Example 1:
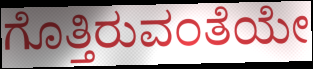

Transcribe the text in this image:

ಗೊತ್ತಿರುವಂತೆಯೇ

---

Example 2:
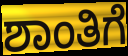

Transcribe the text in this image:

ಶಾಂತಿಗೆ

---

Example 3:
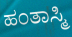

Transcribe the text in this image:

ಹಂತಾಸ್ಮಿ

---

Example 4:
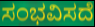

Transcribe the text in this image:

ಸಂಭವಿಸದೆ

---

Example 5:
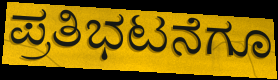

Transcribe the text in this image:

ಪ್ರತಿಭಟನೆಗೂ